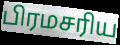
பிரமசரிய